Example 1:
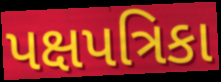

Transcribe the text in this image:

પક્ષપત્રિકા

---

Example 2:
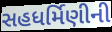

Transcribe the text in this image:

સહધર્મિણીની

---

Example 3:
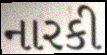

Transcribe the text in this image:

નારકી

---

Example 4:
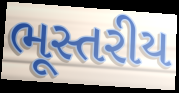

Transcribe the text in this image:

ભૂસ્તરીય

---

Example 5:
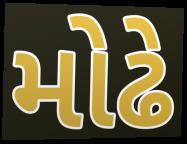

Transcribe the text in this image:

મોઢે